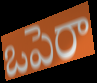
ఒపెరా